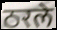
ठरले